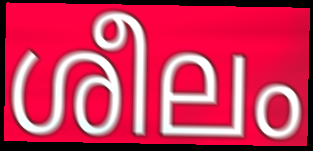
ശീലം